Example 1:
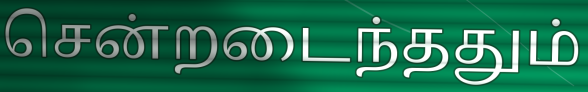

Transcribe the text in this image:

சென்றடைந்ததும்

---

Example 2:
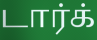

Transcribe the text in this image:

டார்க்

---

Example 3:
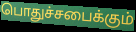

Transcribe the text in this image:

பொதுச்சபைக்கும்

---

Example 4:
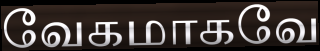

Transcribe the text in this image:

வேகமாகவே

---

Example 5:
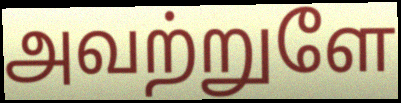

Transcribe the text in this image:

அவற்றுளே